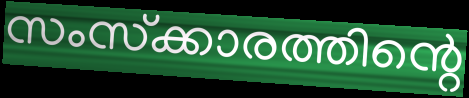
സംസ്‌ക്കാരത്തിന്റെ